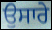
ਉਸਾਰੇ